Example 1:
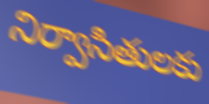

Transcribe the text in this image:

నిర్వాసితులకు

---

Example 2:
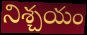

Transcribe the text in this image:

నిశ్చయం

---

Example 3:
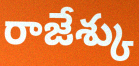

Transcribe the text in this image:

రాజేశ్కు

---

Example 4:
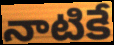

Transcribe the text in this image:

నాటికే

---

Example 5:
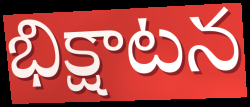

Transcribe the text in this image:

భిక్షాటన